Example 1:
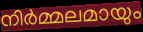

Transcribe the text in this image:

നിർമ്മലമായും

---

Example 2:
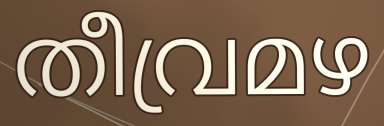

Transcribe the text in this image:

തീവ്രമഴ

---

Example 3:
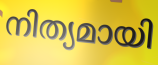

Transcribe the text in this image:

നിത്യമായി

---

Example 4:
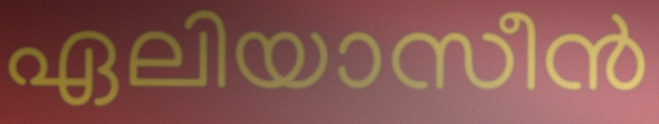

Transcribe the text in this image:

ഏലിയാസീൻ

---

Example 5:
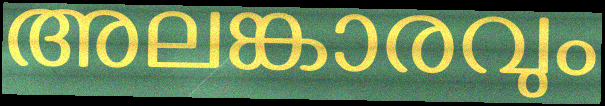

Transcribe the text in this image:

അലങ്കാരവും